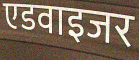
एडवाइजर